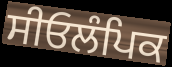
ਸੀਓਲੰਪਿਕ